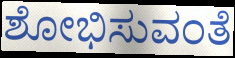
ಶೋಭಿಸುವಂತೆ